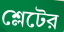
শ্লেটের